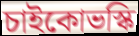
চাইকোভস্কি